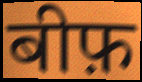
बीफ़